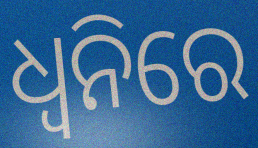
ଧ୍ୱନିରେ